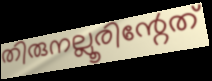
തിരുനല്ലൂരിന്റേത്